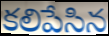
కలిపేసిన